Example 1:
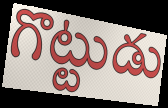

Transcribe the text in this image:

గొట్టుడు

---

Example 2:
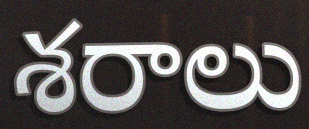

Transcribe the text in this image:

శరాలు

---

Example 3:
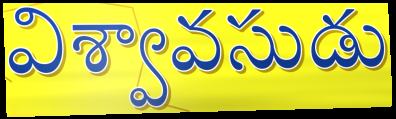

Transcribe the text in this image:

విశ్వావసుడు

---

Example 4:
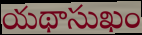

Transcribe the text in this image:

యథాసుఖం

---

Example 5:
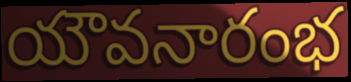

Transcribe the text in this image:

యౌవనారంభ